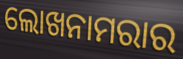
ଲୋଖନାମରାର